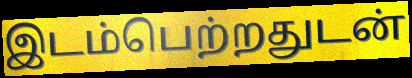
இடம்பெற்றதுடன்